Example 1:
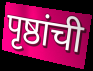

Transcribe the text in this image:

पृष्ठांची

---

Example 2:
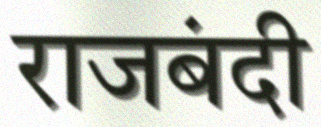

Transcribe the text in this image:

राजबंदी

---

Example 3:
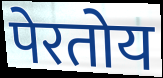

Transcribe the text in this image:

पेरतोय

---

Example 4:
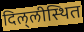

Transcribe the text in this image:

दिल्लीस्थित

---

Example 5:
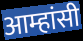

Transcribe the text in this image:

आम्हांसी